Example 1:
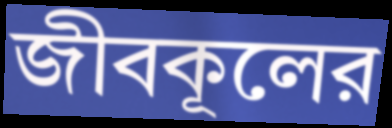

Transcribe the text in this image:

জীবকূলের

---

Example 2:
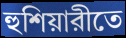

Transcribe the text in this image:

হুশিয়ারীতে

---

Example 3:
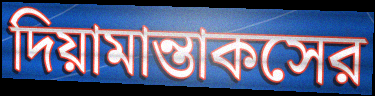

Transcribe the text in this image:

দিয়ামান্তাকসের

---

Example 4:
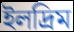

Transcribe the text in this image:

ইলদ্রিম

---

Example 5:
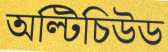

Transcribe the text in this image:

অল্টিচিউড